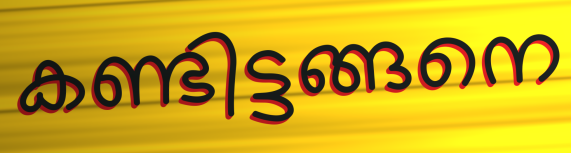
കണ്ടിട്ടങ്ങനെ